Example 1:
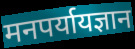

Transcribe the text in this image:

मनपर्यायज्ञान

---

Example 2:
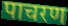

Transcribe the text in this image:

पाचरण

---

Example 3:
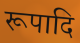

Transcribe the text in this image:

रूपादि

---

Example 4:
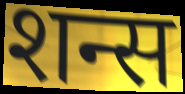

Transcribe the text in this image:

शन्स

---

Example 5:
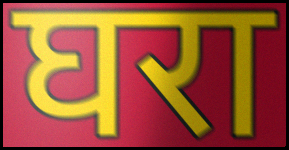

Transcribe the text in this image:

घरा